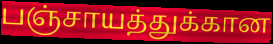
பஞ்சாயத்துக்கான